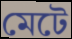
মেটে